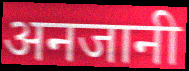
अनजानी